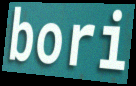
bori